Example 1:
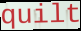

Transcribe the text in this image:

quilt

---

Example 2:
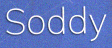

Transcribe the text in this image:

Soddy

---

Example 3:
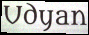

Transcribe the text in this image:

Udyan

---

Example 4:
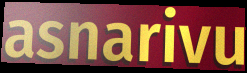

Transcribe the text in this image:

asnarivu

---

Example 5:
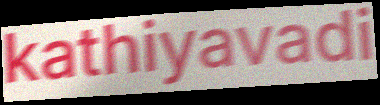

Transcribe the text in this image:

kathiyavadi